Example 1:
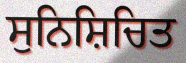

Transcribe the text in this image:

ਸੁਨਿਸ਼ਿਚਿਤ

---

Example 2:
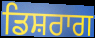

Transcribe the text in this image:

ਡਿਸ਼ਰਾਗ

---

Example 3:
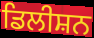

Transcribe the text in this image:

ਡਿਲੀਸ਼ਨ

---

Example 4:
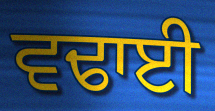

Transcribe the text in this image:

ਵਢਾਈ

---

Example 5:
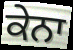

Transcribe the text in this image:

ਕੇਨਾ